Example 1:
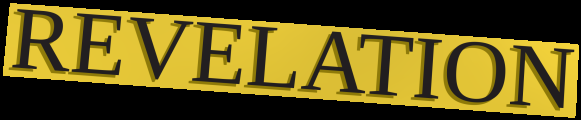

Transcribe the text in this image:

REVELATION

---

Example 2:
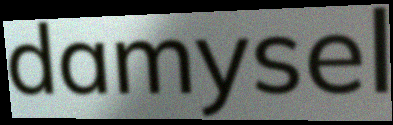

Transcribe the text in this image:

damysel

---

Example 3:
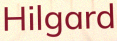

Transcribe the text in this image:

Hilgard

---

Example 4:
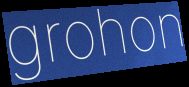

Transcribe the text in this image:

grohon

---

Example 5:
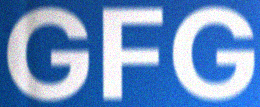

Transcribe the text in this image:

GFG